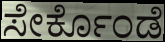
ಸೇರ್ಕೊಂಡೆ